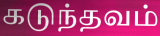
கடுந்தவம்